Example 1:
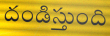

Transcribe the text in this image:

దండిస్తుంది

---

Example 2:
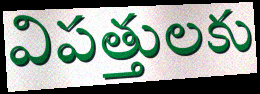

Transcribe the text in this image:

విపత్తులకు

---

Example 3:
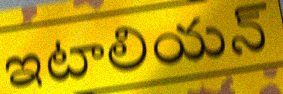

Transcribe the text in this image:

ఇటాలియన్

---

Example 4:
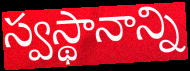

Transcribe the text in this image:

స్వస్థానాన్ని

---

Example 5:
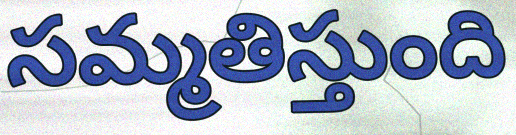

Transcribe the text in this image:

సమ్మతిస్తుంది